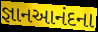
જ્ઞાનઆનંદના